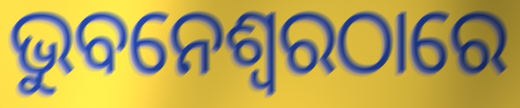
ଭୁବନେଶ୍ଵରଠାରେ